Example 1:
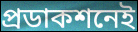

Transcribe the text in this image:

প্রডাকশনেই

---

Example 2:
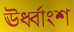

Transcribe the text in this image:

ঊর্ধ্বাংশ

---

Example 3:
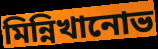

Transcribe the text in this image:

মিন্নিখানোভ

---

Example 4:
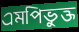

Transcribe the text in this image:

এমপিভুক্ত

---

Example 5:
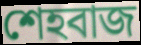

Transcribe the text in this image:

শেহবাজ